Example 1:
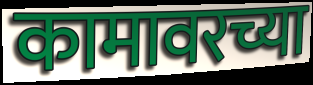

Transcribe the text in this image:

कामावरच्या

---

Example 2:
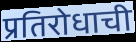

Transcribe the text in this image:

प्रतिरोधाची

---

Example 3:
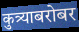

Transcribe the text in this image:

कुत्र्याबरोबर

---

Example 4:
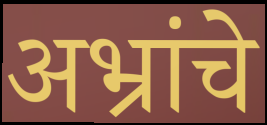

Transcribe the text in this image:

अभ्रांचे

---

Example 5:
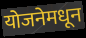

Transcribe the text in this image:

योजनेमधून